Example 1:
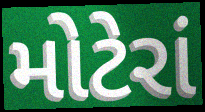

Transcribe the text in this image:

મોટેરાં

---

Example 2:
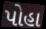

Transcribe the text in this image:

પોહા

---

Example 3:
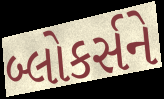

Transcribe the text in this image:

બ્લોકર્સને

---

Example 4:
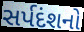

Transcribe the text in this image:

સર્પદંશનો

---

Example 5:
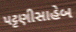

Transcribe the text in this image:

પટ્ટણીસાહેબ